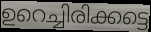
ഉറെച്ചിരിക്കട്ടെ